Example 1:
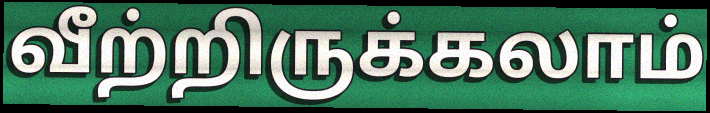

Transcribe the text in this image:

வீற்றிருக்கலாம்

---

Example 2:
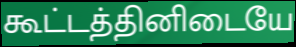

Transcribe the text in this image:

கூட்டத்தினிடையே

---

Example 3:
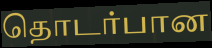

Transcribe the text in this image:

தொடர்பான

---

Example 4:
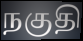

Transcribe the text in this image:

நகுதி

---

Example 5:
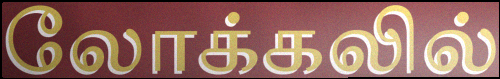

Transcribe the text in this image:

லோக்கலில்